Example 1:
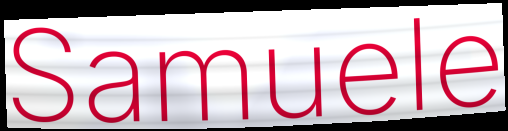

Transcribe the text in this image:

Samuele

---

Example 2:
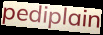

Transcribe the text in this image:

pediplain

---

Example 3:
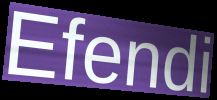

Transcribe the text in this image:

Efendi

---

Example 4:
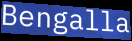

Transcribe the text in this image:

Bengalla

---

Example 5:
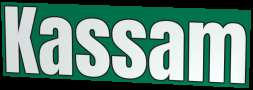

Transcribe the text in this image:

Kassam